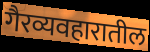
गैरव्यवहारातील